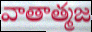
వాతాత్మజ